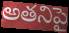
అతనిపై